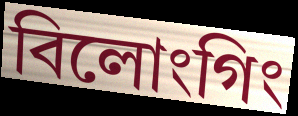
বিলোংগিং